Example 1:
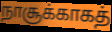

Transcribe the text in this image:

நாசூக்காகத்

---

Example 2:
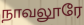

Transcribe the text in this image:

நாவலூரே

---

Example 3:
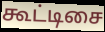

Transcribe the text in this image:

கூட்டிசை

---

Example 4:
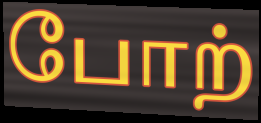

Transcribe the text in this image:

போற்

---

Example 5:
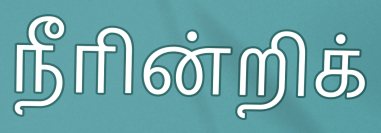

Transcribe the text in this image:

நீரின்றிக்